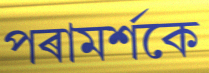
পৰামৰ্শকে